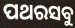
ପଥରସବୁ